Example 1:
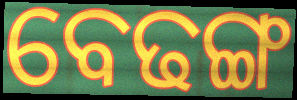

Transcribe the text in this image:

ବେଢଙ୍ଗ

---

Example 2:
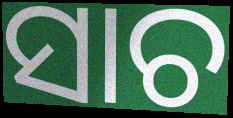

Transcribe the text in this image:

ସାଚ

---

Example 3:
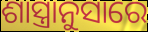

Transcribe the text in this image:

ଶାସ୍ତ୍ରାନୁସାରେ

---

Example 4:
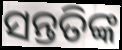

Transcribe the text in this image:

ସନ୍ତତିଙ୍କ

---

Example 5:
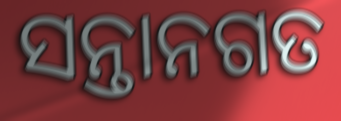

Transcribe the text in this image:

ସନ୍ତାନଗତ